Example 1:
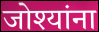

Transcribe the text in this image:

जोश्यांना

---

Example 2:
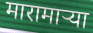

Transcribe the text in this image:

मारामार्‍या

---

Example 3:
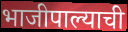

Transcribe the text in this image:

भाजीपाल्याची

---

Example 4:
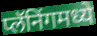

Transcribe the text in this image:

प्लॅनिंगमध्ये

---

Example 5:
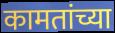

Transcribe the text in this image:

कामतांच्या